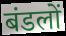
बंडलों